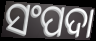
ସଂପଦା